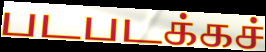
படபடக்கச்